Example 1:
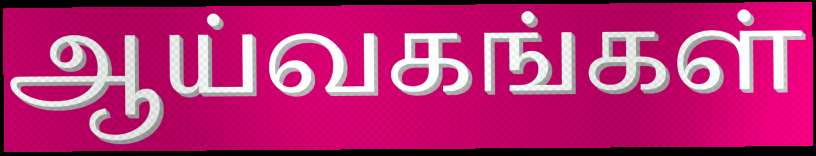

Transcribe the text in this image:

ஆய்வகங்கள்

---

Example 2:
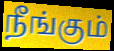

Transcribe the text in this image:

நீங்கும்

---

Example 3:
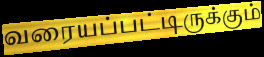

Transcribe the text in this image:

வரையப்பட்டிருக்கும்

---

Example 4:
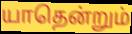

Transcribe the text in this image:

யாதென்றும்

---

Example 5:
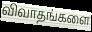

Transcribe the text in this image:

விவாதங்களை